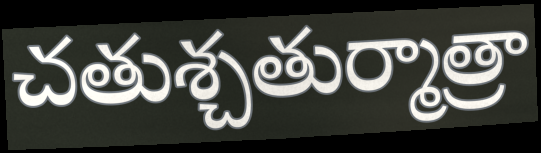
చతుశ్చతుర్మాత్రా